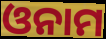
ଓନାମ